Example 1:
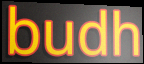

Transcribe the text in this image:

budh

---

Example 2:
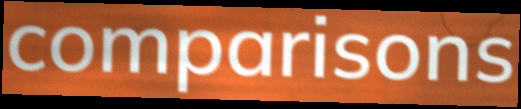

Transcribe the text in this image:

comparisons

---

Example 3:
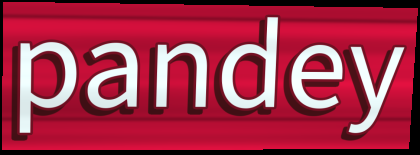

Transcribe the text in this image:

pandey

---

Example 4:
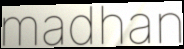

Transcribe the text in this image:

madhan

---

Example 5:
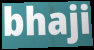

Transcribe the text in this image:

bhaji